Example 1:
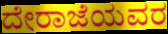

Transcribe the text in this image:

ದೇರಾಜೆಯವರ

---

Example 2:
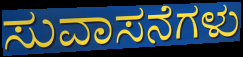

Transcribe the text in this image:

ಸುವಾಸನೆಗಳು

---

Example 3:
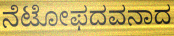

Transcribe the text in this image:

ನೆಟೋಫದವನಾದ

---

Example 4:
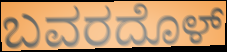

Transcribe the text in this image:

ಬವರದೊಳ್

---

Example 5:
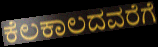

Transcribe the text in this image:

ಕೆಲಕಾಲದವರೆಗೆ